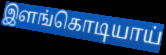
இளங்கொடியாய்